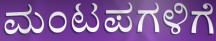
ಮಂಟಪಗಳಿಗೆ